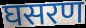
घसरण